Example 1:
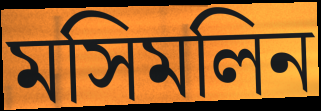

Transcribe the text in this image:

মসিমলিন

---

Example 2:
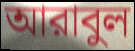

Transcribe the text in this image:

আরাবুল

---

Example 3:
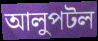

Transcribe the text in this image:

আলুপটল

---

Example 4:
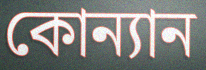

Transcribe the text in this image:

কোন্যান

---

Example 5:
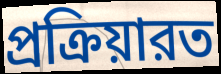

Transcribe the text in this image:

প্রক্রিয়ারত